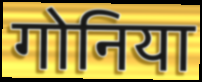
गोनिया